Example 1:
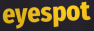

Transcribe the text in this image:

eyespot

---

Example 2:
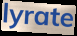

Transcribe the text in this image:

lyrate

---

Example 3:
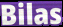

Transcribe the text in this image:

Bilas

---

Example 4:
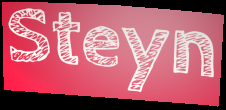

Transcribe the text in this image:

Steyn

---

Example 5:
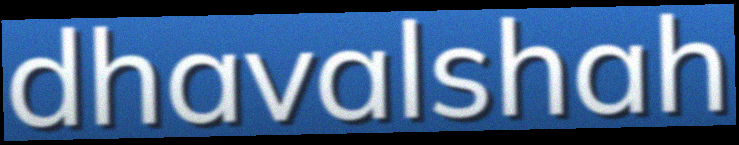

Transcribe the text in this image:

dhavalshah